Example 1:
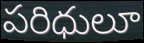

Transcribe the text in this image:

పరిధులూ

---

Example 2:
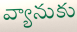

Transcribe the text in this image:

వ్యానుకు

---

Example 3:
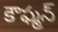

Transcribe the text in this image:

కౌఫ్మన్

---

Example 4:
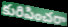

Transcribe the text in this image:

కురిపించరా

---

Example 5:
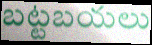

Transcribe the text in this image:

బట్టబయలు